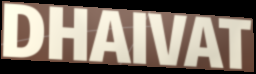
DHAIVAT